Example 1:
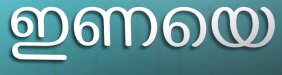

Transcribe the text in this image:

ഇണയെ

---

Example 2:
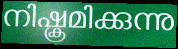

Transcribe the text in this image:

നിഷ്ക്രമിക്കുന്നു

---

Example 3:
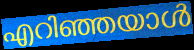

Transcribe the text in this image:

എറിഞ്ഞയാൾ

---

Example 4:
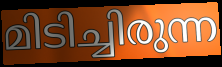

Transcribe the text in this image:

മിടിച്ചിരുന്ന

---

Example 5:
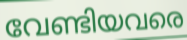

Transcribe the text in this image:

വേണ്ടിയവരെ